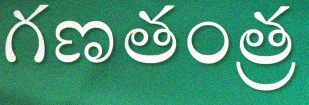
గణతంత్ర